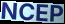
NCEP